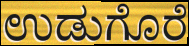
ಉಡುಗೊರೆ